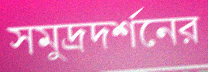
সমুদ্রদর্শনের